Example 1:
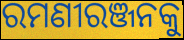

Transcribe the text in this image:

ରମଣୀରଞ୍ଜନକୁ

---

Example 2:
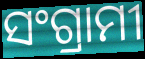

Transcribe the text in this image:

ସଂଗ୍ରାମୀ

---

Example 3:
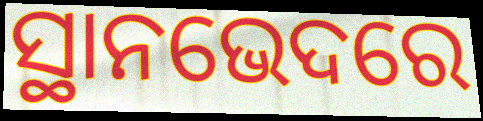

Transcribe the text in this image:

ସ୍ଥାନଭେଦରେ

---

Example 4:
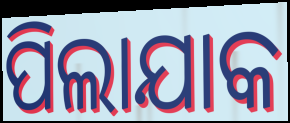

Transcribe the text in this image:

ପିଲାଯାକ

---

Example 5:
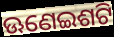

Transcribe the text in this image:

ଊଣେଇଶଟି